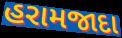
હરામજાદા